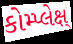
કોમ્પ્લેક્ષ્